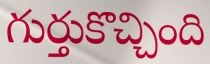
గుర్తుకొచ్చింది